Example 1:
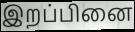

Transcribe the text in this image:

இறப்பினை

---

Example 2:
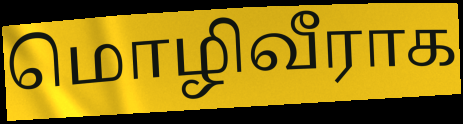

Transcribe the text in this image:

மொழிவீராக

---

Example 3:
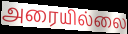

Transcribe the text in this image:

அரையில்லை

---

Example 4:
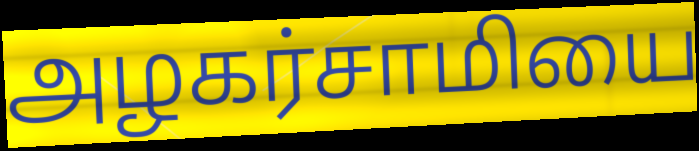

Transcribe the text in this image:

அழகர்சாமியை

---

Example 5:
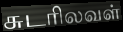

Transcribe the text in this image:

சுடரிலவள்